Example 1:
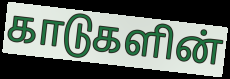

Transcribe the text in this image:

காடுகளின்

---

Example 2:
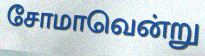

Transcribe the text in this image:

சோமாவென்று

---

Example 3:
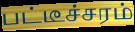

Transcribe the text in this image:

பட்டீச்சரம்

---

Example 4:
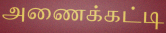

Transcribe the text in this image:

அணைக்கட்டி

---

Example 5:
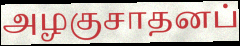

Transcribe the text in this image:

அழகுசாதனப்